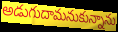
అడుగుదామనుకున్నాను